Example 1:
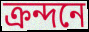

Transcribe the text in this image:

ক্রন্দনে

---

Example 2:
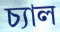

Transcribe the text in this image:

চ্যাল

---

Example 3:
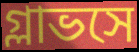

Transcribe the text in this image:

গ্লাভসে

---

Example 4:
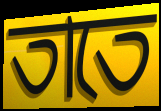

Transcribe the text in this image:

তাতে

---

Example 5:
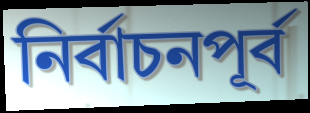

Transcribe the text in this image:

নির্বাচনপূর্ব